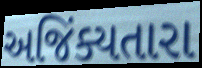
અજિંક્યતારા